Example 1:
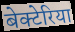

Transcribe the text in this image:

बेक्टेरिया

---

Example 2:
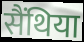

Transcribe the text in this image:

सैंथिया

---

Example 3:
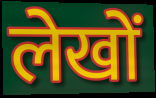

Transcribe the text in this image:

लेखों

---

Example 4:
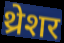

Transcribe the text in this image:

थ्रेशर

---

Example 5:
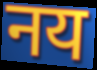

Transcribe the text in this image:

नय